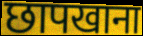
छापखाना